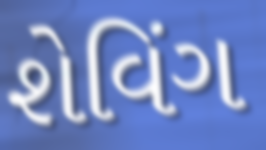
શેવિંગ